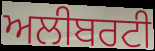
ਅਲੀਬਰਟੀ